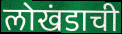
लोखंडाची